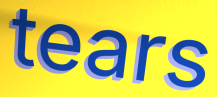
tears